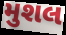
મુશલ